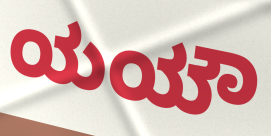
ಯಯೌ